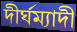
দীৰ্ঘম্যাদী